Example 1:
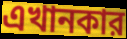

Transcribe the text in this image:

এখানকার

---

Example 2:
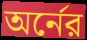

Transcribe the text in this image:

অর্নের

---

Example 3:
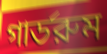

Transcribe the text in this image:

গার্ডরুম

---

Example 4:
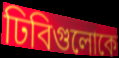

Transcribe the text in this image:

ঢিবিগুলোকে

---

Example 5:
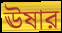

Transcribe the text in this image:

ঊষার